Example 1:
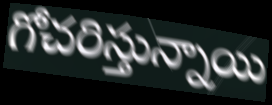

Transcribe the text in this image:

గోచరిస్తున్నాయి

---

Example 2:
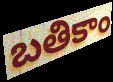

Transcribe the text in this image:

బతికాం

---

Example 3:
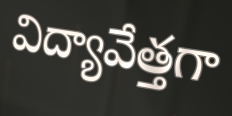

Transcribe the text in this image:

విద్యావేత్తగా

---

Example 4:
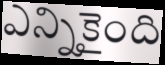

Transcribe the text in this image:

ఎన్నికైంది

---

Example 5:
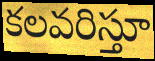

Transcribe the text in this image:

కలవరిస్తూ